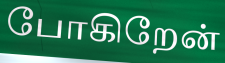
போகிறேன்